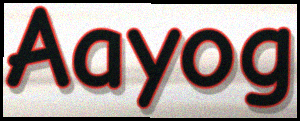
Aayog